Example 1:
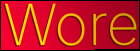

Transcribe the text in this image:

Wore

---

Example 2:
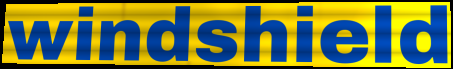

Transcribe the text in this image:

windshield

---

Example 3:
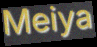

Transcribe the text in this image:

Meiya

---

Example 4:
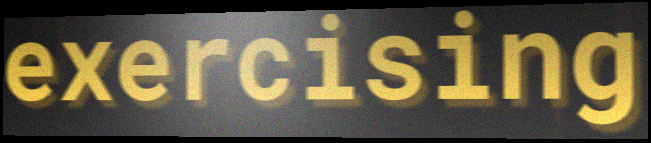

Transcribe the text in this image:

exercising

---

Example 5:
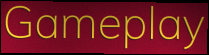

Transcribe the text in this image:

Gameplay